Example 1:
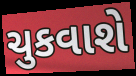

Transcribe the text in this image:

ચુકવાશે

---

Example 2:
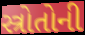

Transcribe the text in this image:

સ્ત્રોતોની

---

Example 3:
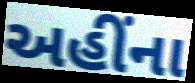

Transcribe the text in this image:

અહીંના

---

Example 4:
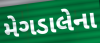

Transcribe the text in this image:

મેગડાલેના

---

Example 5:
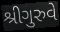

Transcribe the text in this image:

શ્રીગુરુવે